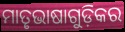
ମାତୃଭାଷାଗୁଡ଼ିକର